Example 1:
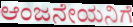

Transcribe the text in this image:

ಆಂಜನೇಯನಿಗೆ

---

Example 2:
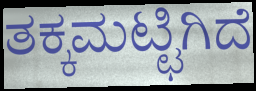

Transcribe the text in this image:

ತಕ್ಕಮಟ್ಟಿಗಿದೆ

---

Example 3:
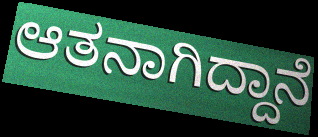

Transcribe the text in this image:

ಆತನಾಗಿದ್ದಾನೆ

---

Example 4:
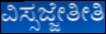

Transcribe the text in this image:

ವಿಸ್ಸಜ್ಜೇತೀತಿ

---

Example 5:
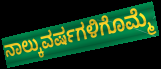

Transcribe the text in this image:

ನಾಲ್ಕುವರ್ಷಗಳಿಗೊಮ್ಮೆ